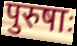
पुरुषाः